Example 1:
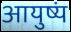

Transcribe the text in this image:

आयुष्यं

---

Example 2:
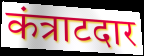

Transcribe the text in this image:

कंत्राटदार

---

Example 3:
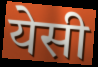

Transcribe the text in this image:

येसी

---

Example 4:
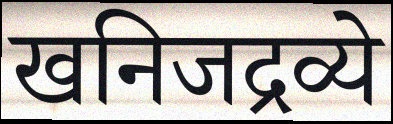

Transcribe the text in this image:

खनिजद्रव्ये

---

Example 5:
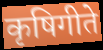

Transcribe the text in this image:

कृषिगीते